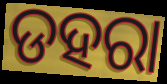
ଡହରା